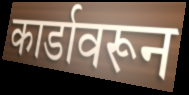
कार्डावरून